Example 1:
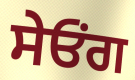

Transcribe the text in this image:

ਸੇਓਂਗ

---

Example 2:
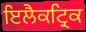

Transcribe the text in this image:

ਇਲੈਕਟ੍ਰਿਕ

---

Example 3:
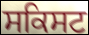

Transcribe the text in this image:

ਸਕਿਸਟ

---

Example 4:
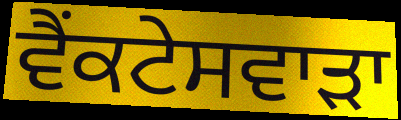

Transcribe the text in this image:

ਵੈਂਕਟੇਸਵਾੜਾ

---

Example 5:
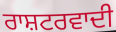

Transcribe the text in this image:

ਰਾਸ਼ਟਰਵਾਦੀ